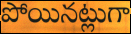
పోయినట్లుగా